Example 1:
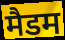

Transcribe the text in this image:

मैडम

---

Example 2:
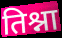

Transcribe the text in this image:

तिश्ना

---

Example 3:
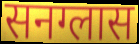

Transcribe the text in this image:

सनग्लास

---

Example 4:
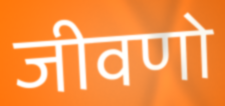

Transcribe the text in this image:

जीवणो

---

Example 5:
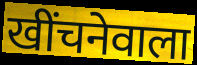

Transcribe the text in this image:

खींचनेवाला